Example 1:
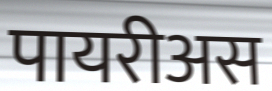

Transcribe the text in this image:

पायरीअस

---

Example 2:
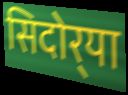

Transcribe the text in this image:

सिदोर्‍या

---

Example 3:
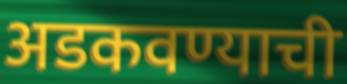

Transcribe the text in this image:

अडकवण्याची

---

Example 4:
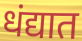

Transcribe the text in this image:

धंद्यात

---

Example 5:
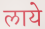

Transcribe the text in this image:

लाये